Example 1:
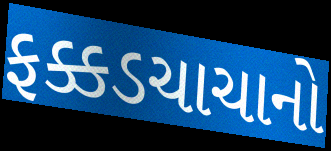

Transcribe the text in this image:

ફક્કડચાચાનો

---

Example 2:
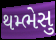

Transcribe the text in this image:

થમ્ભેસુ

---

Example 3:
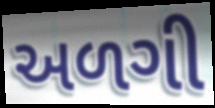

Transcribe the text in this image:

અળગી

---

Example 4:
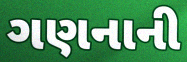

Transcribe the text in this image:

ગણનાની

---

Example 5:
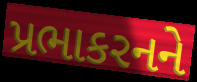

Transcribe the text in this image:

પ્રભાકરનને